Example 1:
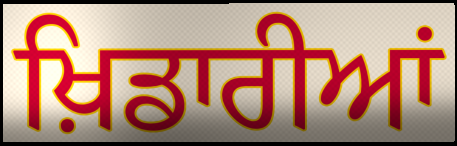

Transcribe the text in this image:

ਖ਼ਿਡਾਰੀਆਂ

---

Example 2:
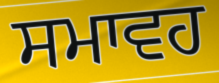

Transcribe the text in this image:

ਸਮਾਵਹ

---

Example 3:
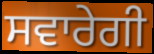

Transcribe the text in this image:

ਸਵਾਰੇਗੀ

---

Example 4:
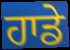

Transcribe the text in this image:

ਹਾਡੇ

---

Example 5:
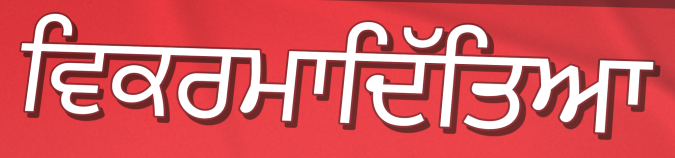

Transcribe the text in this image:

ਵਿਕਰਮਾਦਿੱਤਿਆ